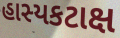
હાસ્યકટાક્ષ